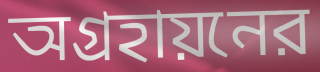
অগ্রহায়নের